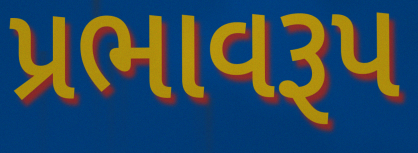
પ્રભાવરૂપ